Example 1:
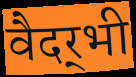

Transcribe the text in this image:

वैदर्भी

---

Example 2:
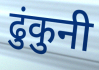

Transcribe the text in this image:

ढुंकुनी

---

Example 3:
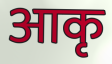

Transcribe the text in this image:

आकृ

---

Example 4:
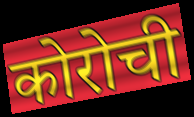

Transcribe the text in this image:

कोरोची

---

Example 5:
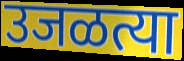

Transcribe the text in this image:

उजळत्या